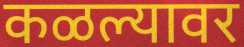
कळल्यावर